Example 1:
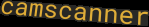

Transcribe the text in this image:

camscanner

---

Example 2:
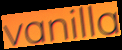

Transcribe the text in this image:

vanilla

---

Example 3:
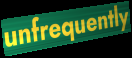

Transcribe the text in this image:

unfrequently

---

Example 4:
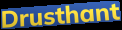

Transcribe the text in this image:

Drusthant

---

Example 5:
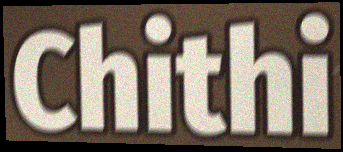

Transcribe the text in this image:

Chithi